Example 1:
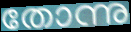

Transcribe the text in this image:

തോന്നു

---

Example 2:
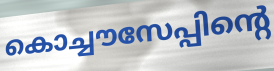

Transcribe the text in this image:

കൊച്ചൗസേപ്പിന്റെ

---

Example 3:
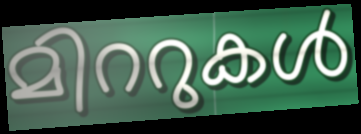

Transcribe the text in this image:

മിററുകൾ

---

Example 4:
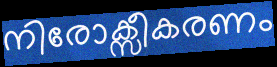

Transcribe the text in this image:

നിരോക്സീകരണം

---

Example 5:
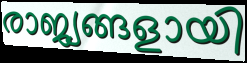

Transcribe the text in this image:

രാജ്യങ്ങളായി